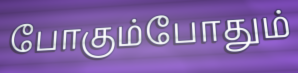
போகும்போதும்